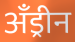
अँड्रीन